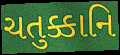
ચતુક્કાનિ